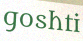
goshti